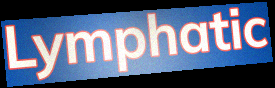
Lymphatic